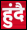
हुंदै